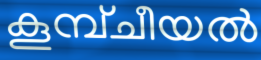
കൂമ്പ്ചീയൽ